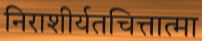
निराशीर्यतचित्तात्मा